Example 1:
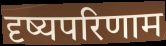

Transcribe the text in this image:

दृष्यपरिणाम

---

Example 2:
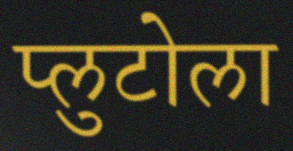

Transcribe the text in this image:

प्लुटोला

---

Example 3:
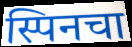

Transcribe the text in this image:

स्पिनचा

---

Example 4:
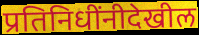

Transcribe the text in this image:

प्रतिनिधींनीदेखील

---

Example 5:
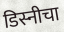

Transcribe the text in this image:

डिस्नीचा